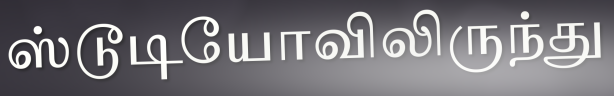
ஸ்டூடியோவிலிருந்து